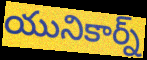
యునికార్న్